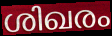
ശിഖരം